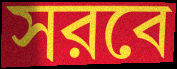
সরবে